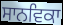
ਸਾਨਵਿਕਾ